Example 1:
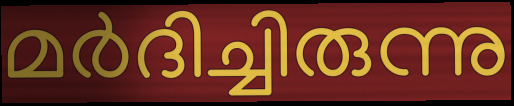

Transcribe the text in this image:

മർദിച്ചിരുന്നു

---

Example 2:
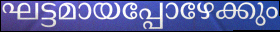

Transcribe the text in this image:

ഘട്ടമായപ്പോഴേക്കും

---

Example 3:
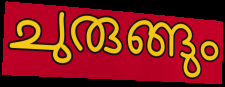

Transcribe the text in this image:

ചുരുങ്ങും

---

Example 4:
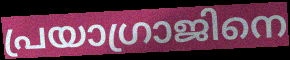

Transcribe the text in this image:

പ്രയാഗ്രാജിനെ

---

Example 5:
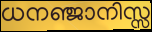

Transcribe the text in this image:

ധനഞ്ജാനിസ്സ